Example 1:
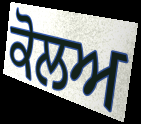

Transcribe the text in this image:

ਕੋਲਅ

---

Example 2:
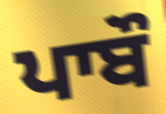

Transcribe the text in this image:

ਪਾਬੌ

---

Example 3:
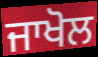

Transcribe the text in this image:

ਜਾਖੋਲ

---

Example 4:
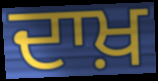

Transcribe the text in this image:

ਦਾਖ਼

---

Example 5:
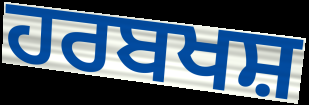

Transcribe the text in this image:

ਹਰਬਖਸ਼